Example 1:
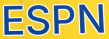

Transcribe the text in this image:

ESPN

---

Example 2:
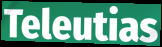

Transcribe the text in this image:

Teleutias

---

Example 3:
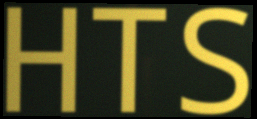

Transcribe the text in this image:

HTS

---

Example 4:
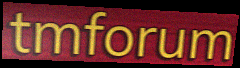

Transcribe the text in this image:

tmforum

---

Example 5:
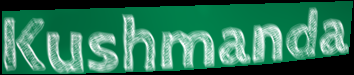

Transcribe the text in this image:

Kushmanda